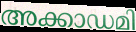
അക്കാഡമി